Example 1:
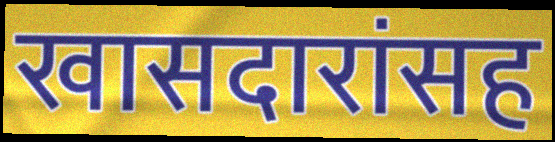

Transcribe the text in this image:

खासदारांसह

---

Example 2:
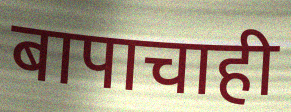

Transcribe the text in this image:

बापाचाही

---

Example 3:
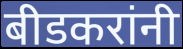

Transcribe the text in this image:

बीडकरांनी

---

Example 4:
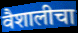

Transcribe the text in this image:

वैशालीचा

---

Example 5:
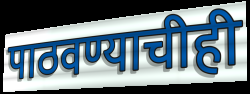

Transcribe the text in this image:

पाठवण्याचीही